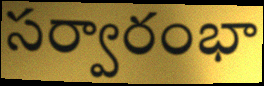
సర్వారంభా